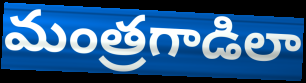
మంత్రగాడిలా